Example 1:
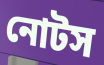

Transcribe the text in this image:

নোটস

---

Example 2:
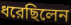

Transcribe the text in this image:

ধরেছিলেন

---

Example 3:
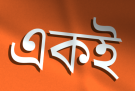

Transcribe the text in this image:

একই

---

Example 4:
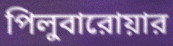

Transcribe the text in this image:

পিলুবারোয়ার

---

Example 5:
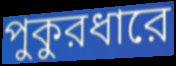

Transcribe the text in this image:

পুকুরধারে